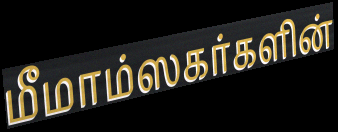
மீமாம்ஸகர்களின்